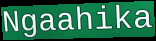
Ngaahika